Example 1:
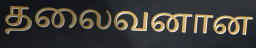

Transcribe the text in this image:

தலைவனான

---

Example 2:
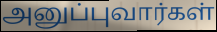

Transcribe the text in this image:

அனுப்புவார்கள்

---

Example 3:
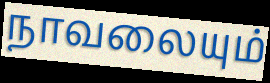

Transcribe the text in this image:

நாவலையும்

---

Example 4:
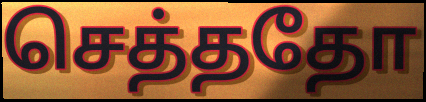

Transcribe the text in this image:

செத்ததோ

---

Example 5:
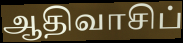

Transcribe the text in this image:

ஆதிவாசிப்